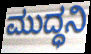
ಮುದ್ಧನಿ